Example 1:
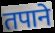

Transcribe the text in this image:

तपाने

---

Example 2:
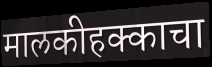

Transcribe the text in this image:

मालकीहक्काचा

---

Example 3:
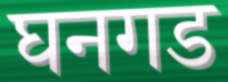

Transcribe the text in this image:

घनगड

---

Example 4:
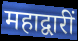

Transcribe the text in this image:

महाद्वारीं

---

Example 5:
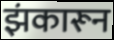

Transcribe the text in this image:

झंकारून